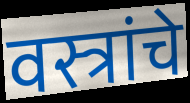
वस्त्रांचे